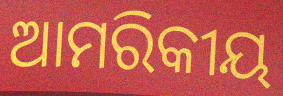
ଆମରିକୀୟ